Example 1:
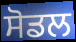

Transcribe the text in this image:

ਸੋਡਲ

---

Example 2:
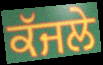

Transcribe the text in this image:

ਕੱਜਲੇ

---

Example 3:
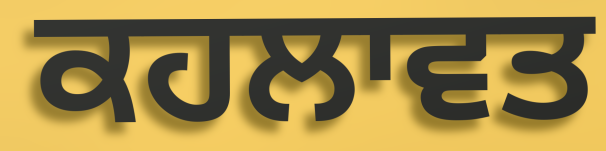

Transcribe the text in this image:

ਕਹਲਾਵਤ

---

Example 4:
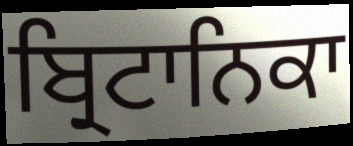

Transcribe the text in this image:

ਬ੍ਰਿਟਾਨਿਕਾ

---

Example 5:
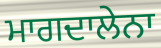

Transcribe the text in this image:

ਮਾਗਦਾਲੇਨਾ